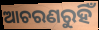
ଆଚରଣରୁହିଁ